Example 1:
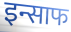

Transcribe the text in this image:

इन्साफ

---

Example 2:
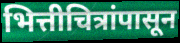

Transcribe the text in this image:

भित्तीचित्रांपासून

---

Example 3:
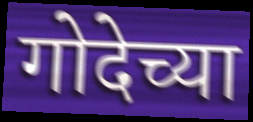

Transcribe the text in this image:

गोदेच्या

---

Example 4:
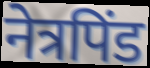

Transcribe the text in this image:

नेत्रपिंड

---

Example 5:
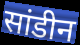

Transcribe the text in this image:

सांडीन